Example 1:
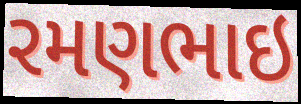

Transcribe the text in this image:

રમણભાઇ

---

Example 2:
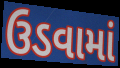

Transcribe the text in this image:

ઉડવામાં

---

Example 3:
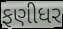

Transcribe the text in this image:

ફણીધર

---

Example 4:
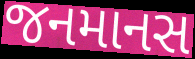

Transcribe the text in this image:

જનમાનસ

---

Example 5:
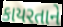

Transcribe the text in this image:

કાયરતાને